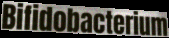
Bifidobacterium